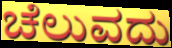
ಚೆಲುವದು